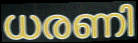
ധരണി